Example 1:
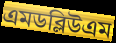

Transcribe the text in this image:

এমডব্লিউএম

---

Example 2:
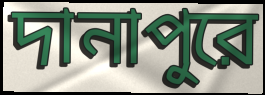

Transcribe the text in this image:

দানাপুরে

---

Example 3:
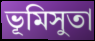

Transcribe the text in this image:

ভূমিসুতা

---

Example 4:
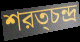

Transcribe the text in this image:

শরত্চন্দ্র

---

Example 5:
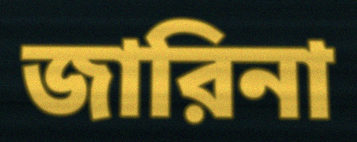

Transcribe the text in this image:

জারিনা